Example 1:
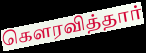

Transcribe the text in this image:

கௌரவித்தார்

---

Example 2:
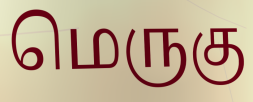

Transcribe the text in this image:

மெருகு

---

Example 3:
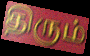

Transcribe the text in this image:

திரும்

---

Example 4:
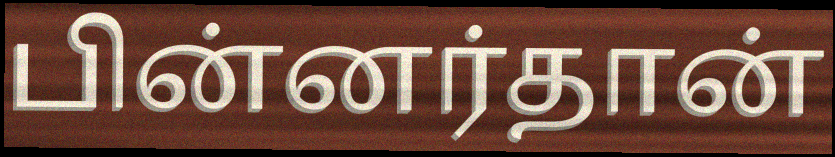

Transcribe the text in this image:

பின்னர்தான்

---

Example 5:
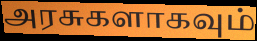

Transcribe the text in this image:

அரசுகளாகவும்